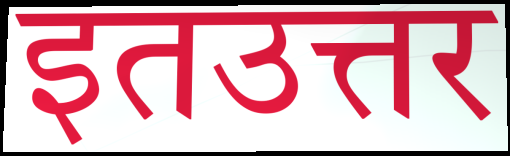
इतउत्तर